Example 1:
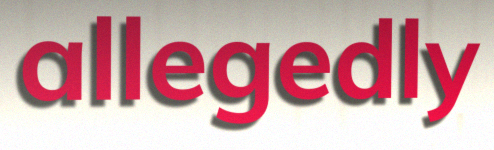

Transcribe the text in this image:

allegedly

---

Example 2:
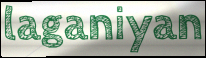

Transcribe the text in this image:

laganiyan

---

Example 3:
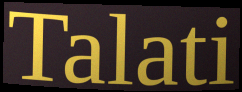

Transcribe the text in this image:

Talati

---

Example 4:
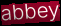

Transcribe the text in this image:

abbey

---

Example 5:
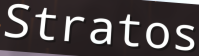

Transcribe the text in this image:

Stratos